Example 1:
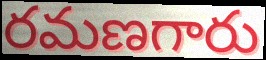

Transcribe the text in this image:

రమణగారు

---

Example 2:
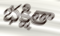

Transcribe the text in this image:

భక్షితా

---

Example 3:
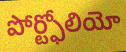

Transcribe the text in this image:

పోర్ట్ఫోలియో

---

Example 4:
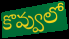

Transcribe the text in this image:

కొవ్వులో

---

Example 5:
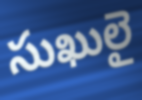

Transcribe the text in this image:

సుఖులై